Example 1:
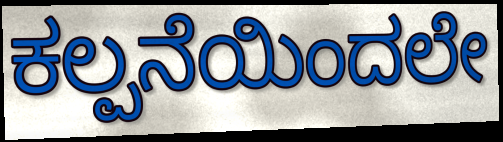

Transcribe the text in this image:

ಕಲ್ಪನೆಯಿಂದಲೇ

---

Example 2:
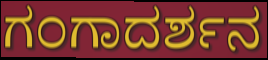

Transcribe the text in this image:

ಗಂಗಾದರ್ಶನ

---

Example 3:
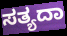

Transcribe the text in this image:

ಸತ್ಯದಾ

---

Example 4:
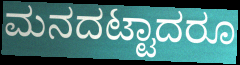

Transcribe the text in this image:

ಮನದಟ್ಟಾದರೂ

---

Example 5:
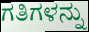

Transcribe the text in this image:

ಗತಿಗಳನ್ನು